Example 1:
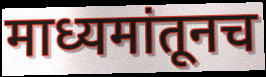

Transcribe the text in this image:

माध्यमांतूनच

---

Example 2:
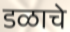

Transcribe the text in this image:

डळाचे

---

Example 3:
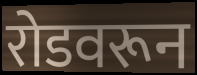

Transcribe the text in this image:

रोडवरून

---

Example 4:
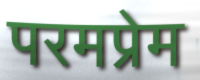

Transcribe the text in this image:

परमप्रेम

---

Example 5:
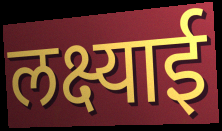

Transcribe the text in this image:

लक्ष्याई